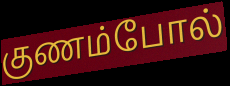
குணம்போல்